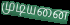
முடியனை